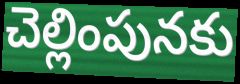
చెల్లింపునకు